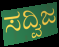
ಸದ್ವಿಜ